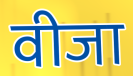
वीजा